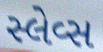
સ્લેવ્સ